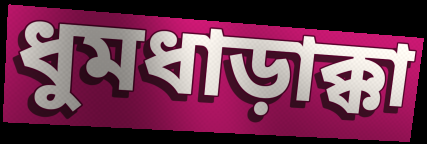
ধুমধাড়াক্কা